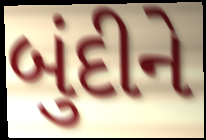
બુંદીને